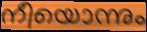
നീയൊന്നും